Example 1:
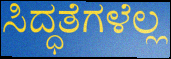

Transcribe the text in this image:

ಸಿದ್ಧತೆಗಳೆಲ್ಲ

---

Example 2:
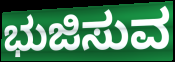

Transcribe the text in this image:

ಭುಜಿಸುವ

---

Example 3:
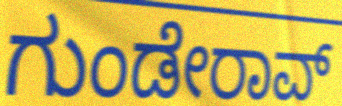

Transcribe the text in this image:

ಗುಂಡೇರಾವ್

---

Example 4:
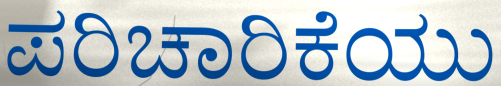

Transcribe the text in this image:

ಪರಿಚಾರಿಕೆಯು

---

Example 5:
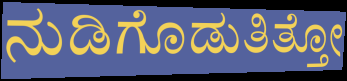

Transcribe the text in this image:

ನುಡಿಗೊಡುತಿತ್ತೋ